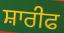
ਸ਼ਾਰੀਫ